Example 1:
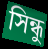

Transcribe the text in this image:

সিন্ধু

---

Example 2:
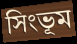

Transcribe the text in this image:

সিংভূম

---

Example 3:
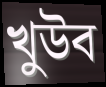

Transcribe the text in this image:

খুউব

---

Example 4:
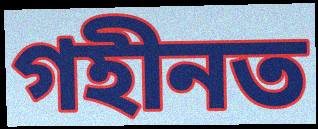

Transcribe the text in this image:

গহীনত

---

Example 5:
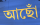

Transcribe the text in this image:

আছোঁ